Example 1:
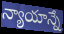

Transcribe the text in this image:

న్యాయాన్నే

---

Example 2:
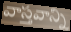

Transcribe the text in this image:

వాస్తవాన్ని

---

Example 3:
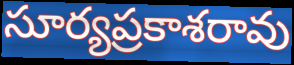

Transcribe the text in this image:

సూర్యప్రకాశరావు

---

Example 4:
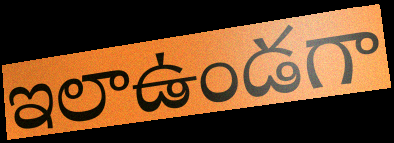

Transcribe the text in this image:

ఇలాఉండగా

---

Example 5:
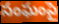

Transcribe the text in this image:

సంఘంపై